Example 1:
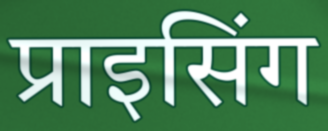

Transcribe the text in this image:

प्राइसिंग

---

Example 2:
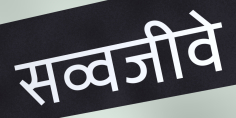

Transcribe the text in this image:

सव्वजीवे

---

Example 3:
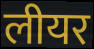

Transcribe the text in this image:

लीयर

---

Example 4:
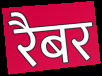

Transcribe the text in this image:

रैबर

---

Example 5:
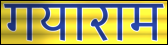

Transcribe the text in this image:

गयाराम